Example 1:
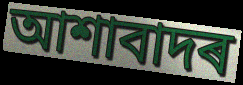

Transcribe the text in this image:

আশাবাদৰ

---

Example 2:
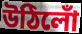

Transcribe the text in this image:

উঠিলোঁ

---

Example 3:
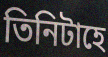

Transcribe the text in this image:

তিনিটাহে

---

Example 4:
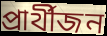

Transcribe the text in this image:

প্ৰাৰ্থীজন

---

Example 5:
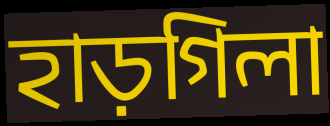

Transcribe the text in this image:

হাড়গিলা